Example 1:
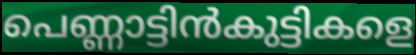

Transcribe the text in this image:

പെണ്ണാട്ടിൻകുട്ടികളെ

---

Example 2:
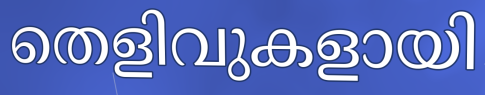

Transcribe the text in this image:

തെളിവുകളായി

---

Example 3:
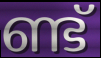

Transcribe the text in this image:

ണ്ട്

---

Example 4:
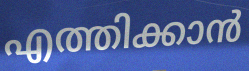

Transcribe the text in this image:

എത്തിക്കാൻ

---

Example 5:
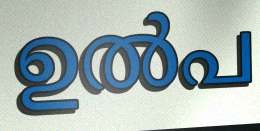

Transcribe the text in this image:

ഉൽപ